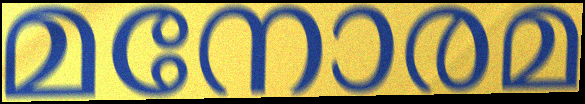
മനോരമ